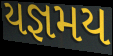
યજ્ઞમય